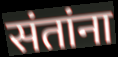
संतांना